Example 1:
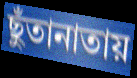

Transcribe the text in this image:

ছুঁতানাতায়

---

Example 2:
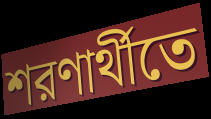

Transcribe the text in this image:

শরণার্থীতে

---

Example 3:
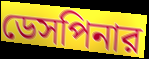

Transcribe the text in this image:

ডেসপিনার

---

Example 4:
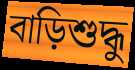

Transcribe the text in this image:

বাড়িশুদ্ধু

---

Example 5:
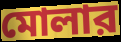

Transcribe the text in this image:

মোলার